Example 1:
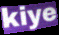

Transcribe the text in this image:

kiye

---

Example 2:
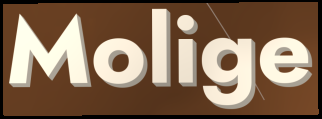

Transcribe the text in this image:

Molige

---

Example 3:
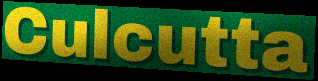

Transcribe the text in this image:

Culcutta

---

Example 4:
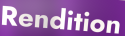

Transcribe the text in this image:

Rendition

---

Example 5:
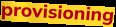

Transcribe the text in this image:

provisioning